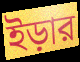
ইড়ার